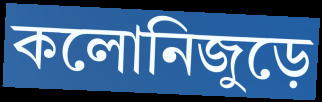
কলোনিজুড়ে